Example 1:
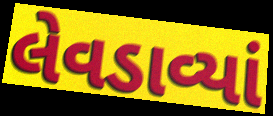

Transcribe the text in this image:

લેવડાવ્યાં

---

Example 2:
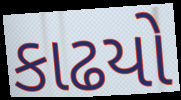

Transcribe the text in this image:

કાઢયો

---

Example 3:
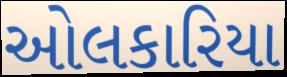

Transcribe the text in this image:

ઓલકારિયા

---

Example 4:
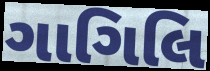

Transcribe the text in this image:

ગાગિલિ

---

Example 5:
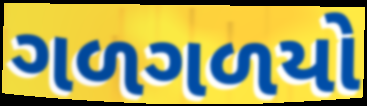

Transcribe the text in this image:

ગળગળયો